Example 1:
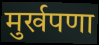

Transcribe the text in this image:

मुर्खपणा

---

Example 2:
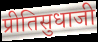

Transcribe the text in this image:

प्रीतिसुधाजी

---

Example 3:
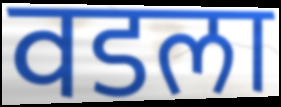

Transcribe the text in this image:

वडला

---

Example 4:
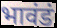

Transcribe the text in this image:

भावंडं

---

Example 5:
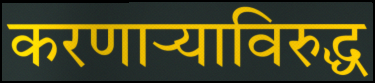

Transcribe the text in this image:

करणाऱ्याविरुद्ध